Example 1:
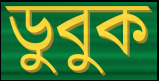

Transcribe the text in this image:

ডুবুক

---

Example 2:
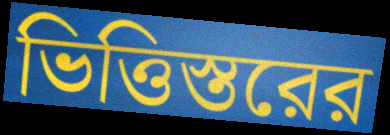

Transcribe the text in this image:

ভিত্তিস্তরের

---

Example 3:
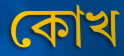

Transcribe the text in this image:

কোখ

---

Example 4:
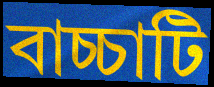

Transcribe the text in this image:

বাচ্চাটি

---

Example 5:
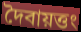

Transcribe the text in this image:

দৈবায়ত্তং